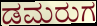
ಡಮರುಗ